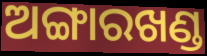
ଅଙ୍ଗାରଖଣ୍ଡ